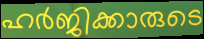
ഹർജിക്കാരുടെ